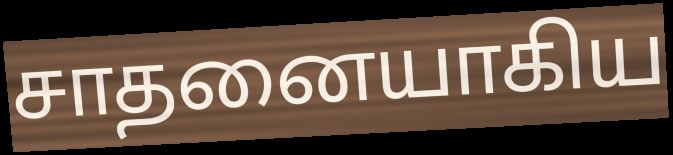
சாதனையாகிய